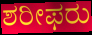
ಶರೀಫರು